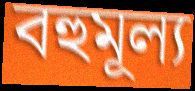
বহুমূল্য